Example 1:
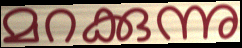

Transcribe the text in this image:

മറക്കുന്നു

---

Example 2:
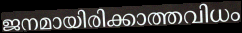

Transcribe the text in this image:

ജനമായിരിക്കാത്തവിധം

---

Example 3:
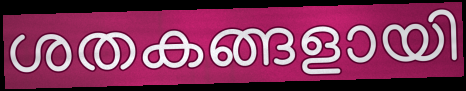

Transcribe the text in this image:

ശതകങ്ങളായി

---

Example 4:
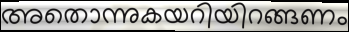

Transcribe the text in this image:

അതൊന്നുകയറിയിറങ്ങണം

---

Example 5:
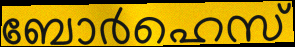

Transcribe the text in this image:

ബോർഹെസ്